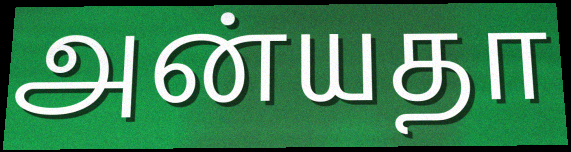
அன்யதா